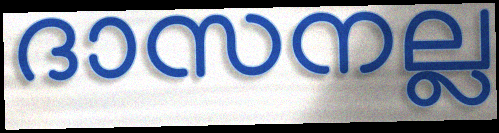
ദാസനല്ല